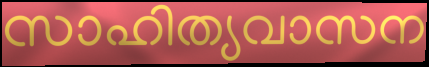
സാഹിത്യവാസന